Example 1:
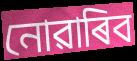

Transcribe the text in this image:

নোৱাৰিব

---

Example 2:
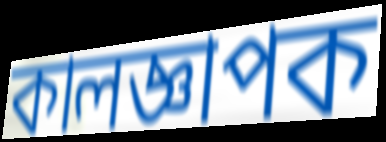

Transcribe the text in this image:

কালজ্ঞাপক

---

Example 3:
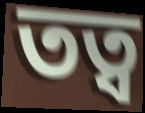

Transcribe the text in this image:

তত্ব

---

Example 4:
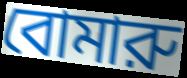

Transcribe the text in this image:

বোমাৰু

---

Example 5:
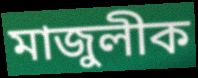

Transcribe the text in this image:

মাজুলীক